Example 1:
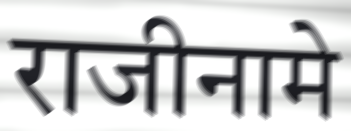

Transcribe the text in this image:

राजीनामे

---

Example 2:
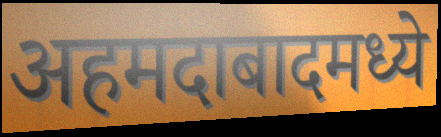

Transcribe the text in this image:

अहमदाबादमध्ये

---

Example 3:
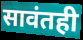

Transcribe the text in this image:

सावंतही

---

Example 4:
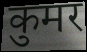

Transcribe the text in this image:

कुमर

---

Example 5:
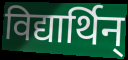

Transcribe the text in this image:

विद्यार्थिन्